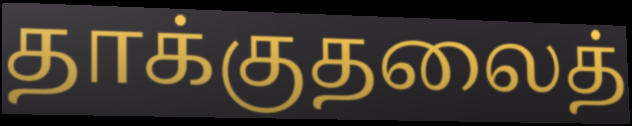
தாக்குதலைத்